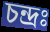
চন্দ্রঃ